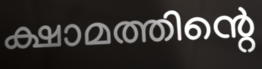
ക്ഷാമത്തിന്റെ